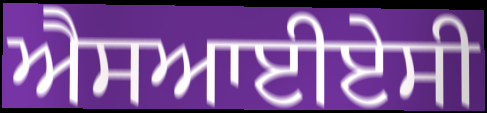
ਐਸਆਈਏਸੀ